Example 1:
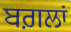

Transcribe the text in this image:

ਬਗ਼ਲਾਂ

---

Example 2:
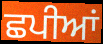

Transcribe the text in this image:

ਛਪੀਆਂ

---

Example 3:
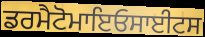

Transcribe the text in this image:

ਡਰਮੈਟੋਮਾਇਓਸਾਈਟਸ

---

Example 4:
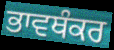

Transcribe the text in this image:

ਭਾਵਥੰਕਰ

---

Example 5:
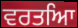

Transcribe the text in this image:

ਵਰਤਆਿ